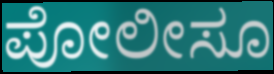
ಪೋಲೀಸೂ